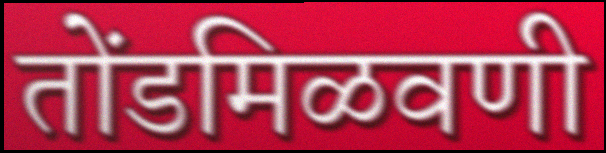
तोंडमिळवणी